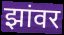
झांवर